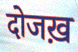
दोजख़